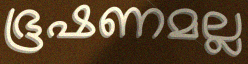
ഭൂഷണമല്ല